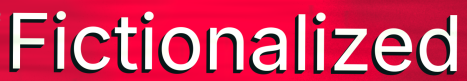
Fictionalized